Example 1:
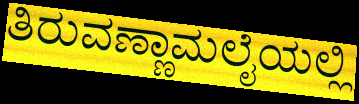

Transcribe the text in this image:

ತಿರುವಣ್ಣಾಮಲೈಯಲ್ಲಿ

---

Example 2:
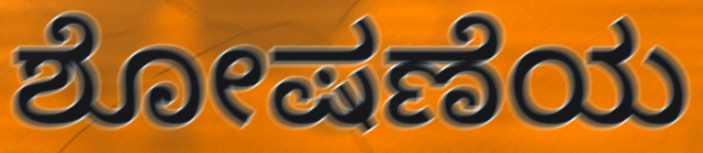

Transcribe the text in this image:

ಶೋಷಣೆಯ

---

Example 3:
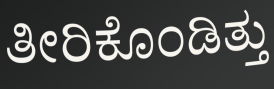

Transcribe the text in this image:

ತೀರಿಕೊಂಡಿತ್ತು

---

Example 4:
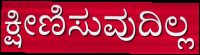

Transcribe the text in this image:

ಕ್ಷೀಣಿಸುವುದಿಲ್ಲ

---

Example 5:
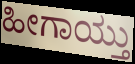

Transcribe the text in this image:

ಹೀಗಾಯ್ತು